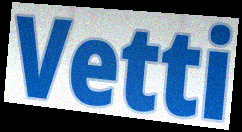
Vetti